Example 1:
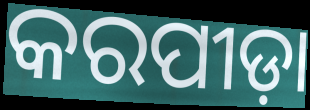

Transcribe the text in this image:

କରପୀଡ଼ା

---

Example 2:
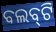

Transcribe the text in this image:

ବଲବ୍‌ଟି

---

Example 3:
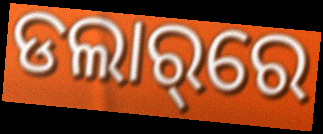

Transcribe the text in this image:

ଡଲାର୍‌ରେ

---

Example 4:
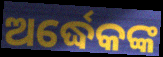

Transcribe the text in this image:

ଅର୍ଦ୍ଧେକଙ୍କ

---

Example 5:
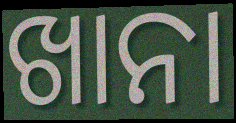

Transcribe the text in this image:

ଖାନା